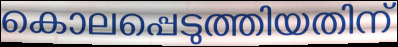
കൊലപ്പെടുത്തിയതിന്